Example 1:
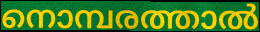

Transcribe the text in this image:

നൊമ്പരത്താൽ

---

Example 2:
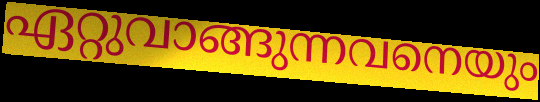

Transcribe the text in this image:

ഏറ്റുവാങ്ങുന്നവനെയും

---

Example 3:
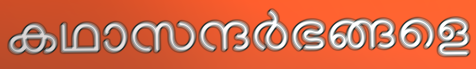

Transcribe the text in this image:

കഥാസന്ദർഭങ്ങളെ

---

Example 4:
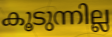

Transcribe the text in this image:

കൂടുന്നില്ല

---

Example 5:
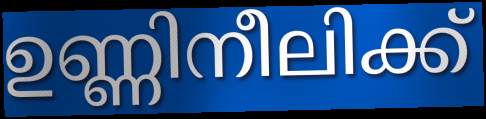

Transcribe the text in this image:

ഉണ്ണിനീലിക്ക്